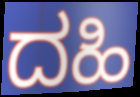
ದಹಿ